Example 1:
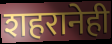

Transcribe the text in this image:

शहरानेही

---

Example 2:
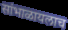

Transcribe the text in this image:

सांभाळायलाच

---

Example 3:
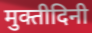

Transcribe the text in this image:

मुक्तीदिनी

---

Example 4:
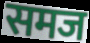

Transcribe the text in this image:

समज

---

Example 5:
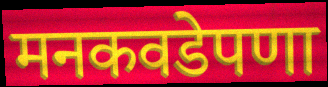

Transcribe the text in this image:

मनकवडेपणा